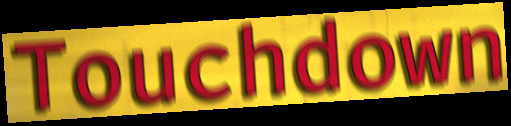
Touchdown